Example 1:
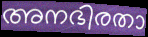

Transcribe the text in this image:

അനഭിരതാ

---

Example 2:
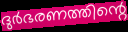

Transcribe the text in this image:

ദുർഭരണത്തിന്റെ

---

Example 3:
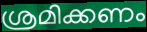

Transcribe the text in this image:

ശ്രമിക്കണം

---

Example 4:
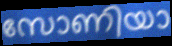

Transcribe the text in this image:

സോണിയാ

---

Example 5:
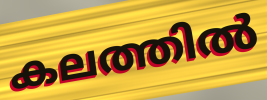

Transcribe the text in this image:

കലത്തിൽ